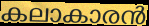
കലാകാരൻ